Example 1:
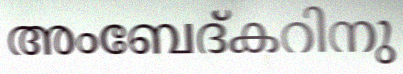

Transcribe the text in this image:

അംബേദ്കറിനു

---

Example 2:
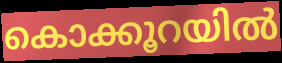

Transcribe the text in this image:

കൊക്കൂറയിൽ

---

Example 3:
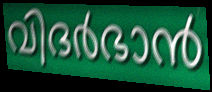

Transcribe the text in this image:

വിദർഭാൻ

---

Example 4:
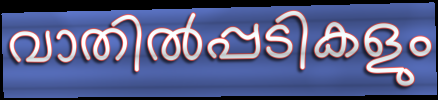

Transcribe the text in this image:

വാതിൽപ്പടികളും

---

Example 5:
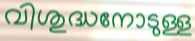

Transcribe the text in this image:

വിശുദ്ധനോടുള്ള